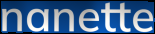
nanette